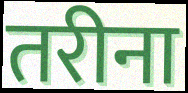
तरीना